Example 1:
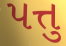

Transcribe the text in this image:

પત્તુ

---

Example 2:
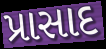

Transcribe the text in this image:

પ્રાસાદ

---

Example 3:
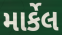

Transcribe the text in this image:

માર્કેલ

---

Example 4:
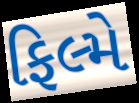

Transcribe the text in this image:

ફિલ્મે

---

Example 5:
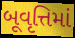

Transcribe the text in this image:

બૂવૃત્તિમાં